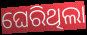
ଘେରିଥିଲା